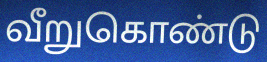
வீறுகொண்டு